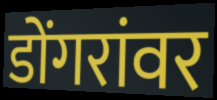
डोंगरांवर